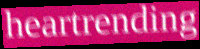
heartrending